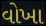
વોખા